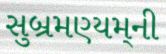
સુબ્રમણ્યમ્‌ની